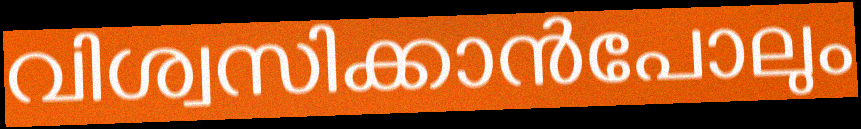
വിശ്വസിക്കാൻപോലും